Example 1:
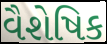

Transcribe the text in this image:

વૈશેષિક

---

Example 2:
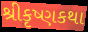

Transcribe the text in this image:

શ્રીકૃષ્ણકથા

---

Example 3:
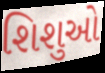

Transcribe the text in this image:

શિશુઓ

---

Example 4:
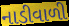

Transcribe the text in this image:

નાડીવાળી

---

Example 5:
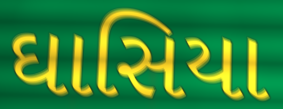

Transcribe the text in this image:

ઘાસિયા